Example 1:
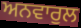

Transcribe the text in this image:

ਅਨਵਾਰੁਲ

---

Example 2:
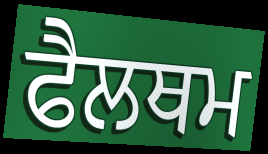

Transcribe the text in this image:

ਫੈਲਥਮ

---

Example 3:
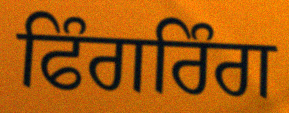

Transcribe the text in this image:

ਫਿੰਗਰਿੰਗ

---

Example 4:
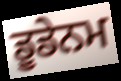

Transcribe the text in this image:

ਡੂਡੇਨਮ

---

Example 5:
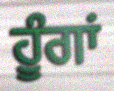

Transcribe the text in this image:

ਹੂੰਗਾਂ